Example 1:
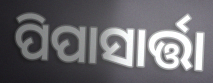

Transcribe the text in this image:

ପିପାସାର୍ତ୍ତା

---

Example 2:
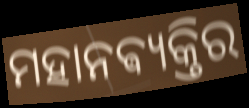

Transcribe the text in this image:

ମହାନଵ୍ୟକ୍ତିର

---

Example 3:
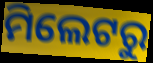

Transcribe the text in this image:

ମିଲେଟରୁ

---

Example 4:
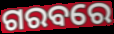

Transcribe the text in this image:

ଗରବରେ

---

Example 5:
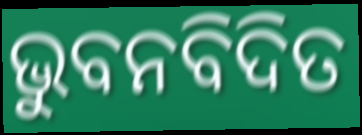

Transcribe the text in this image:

ଭୁବନବିଦିତ